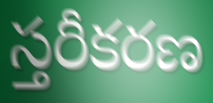
స్తరీకరణ